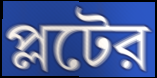
প্লটের